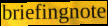
briefingnote